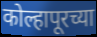
कोल्हापूरच्या